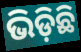
ଭିଡ଼ିଛି